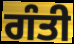
ਗੰਤੀ